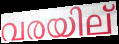
വരയില്